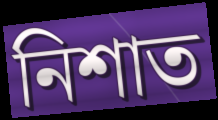
নিশাত